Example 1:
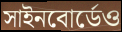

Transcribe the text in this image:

সাইনবোর্ডেও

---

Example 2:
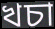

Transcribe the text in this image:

খচা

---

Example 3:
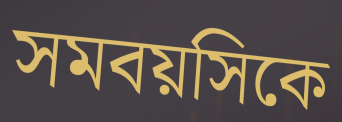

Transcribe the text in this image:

সমবয়সিকে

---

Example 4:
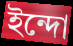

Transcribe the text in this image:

ইন্দো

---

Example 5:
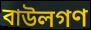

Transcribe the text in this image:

বাউলগণ